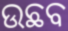
ଉଛବ